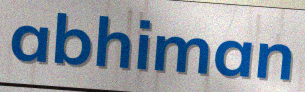
abhiman